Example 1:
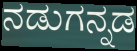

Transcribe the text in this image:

ನಡುಗನ್ನಡ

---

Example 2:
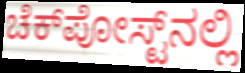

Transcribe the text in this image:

ಚೆಕ್‌ಪೋಸ್ಟ್‌ನಲ್ಲಿ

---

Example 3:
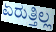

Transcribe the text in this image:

ಏರುತ್ತಿಲ್ಲ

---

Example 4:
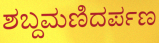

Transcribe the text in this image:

ಶಬ್ದಮಣಿದರ್ಪಣ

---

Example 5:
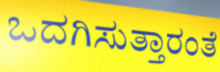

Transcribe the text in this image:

ಒದಗಿಸುತ್ತಾರಂತೆ